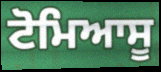
ਟੋਮਿਆਸੂ